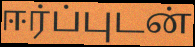
ஈர்ப்புடன்